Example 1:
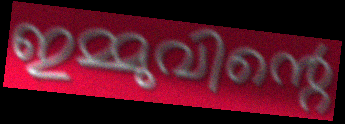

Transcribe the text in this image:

ഇമ്മുവിന്റെ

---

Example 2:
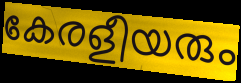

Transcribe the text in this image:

കേരളീയരും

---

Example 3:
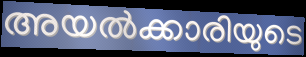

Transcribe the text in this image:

അയൽക്കാരിയുടെ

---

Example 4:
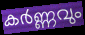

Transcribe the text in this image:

കർണ്ണവും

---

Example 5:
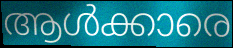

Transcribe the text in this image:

ആൾക്കാരെ